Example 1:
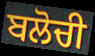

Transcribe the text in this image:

ਬਲੋਚੀ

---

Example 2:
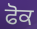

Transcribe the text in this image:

ਫੋਕ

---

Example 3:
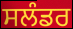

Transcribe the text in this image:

ਸਲੰਡਰ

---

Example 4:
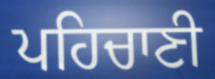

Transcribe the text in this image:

ਪਹਿਚਾਣੀ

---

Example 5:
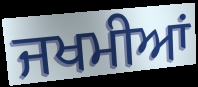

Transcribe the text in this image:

ਜਖਮੀਆਂ